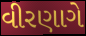
વીરણાગે